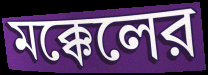
মক্কেলের